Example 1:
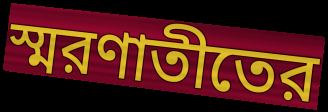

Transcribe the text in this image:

স্মরণাতীতের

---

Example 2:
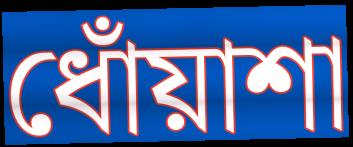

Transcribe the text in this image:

ধোঁয়াশা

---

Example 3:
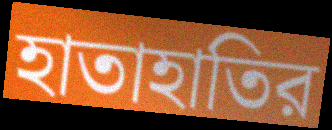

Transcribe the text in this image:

হাতাহাতির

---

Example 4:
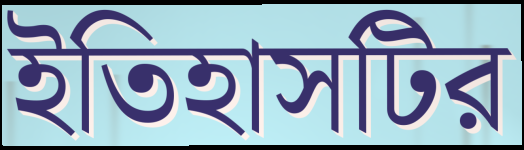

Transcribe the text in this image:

ইতিহাসটির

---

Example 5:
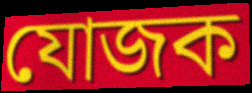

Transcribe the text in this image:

যোজক